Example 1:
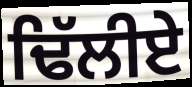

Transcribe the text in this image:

ਢਿੱਲੀਏ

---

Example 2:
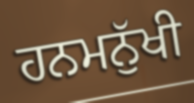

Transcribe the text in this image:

ਹਨਮਨੁੱਖੀ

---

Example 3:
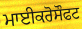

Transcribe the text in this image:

ਮਾਈਕਰੋਸੌਫਟ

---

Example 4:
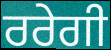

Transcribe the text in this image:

ਰਰੇਗੀ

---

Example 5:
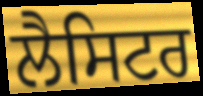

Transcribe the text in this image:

ਲੈਸਿਟਰ